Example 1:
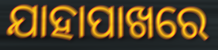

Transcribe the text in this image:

ଯାହାପାଖରେ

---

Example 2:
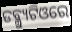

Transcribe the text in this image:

ଡବ୍ଲ୍ୟୁଟିଓରେ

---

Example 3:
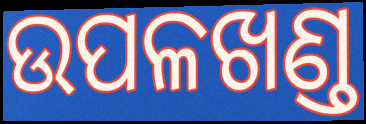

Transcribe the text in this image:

ଉପଳଖଣ୍ଡ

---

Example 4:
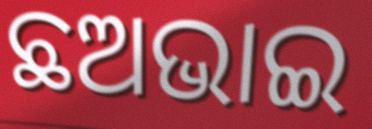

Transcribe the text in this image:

ଛଅଭାଇ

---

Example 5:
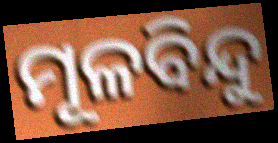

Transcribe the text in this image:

ମୂଳବିନ୍ଦୁ